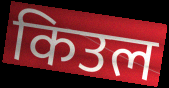
किउल